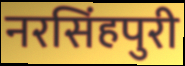
नरसिंहपुरी